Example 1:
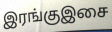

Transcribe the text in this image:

இரங்குஇசை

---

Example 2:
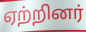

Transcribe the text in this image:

ஏற்றினர்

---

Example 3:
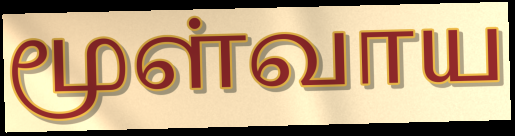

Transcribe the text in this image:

மூள்வாய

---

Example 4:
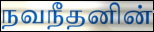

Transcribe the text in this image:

நவநீதனின்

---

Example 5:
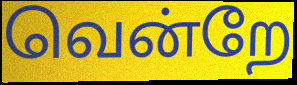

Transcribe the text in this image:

வென்றே